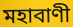
মহাবাণী